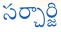
సర్చార్జి